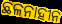
ଛଳନାହୀନ